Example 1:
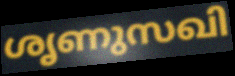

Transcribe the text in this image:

ശൃണുസഖി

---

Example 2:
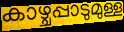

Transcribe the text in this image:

കാഴ്ചപ്പാടുമുള്ള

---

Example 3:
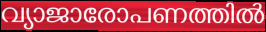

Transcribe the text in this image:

വ്യാജാരോപണത്തിൽ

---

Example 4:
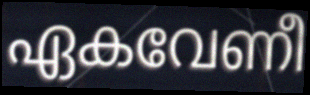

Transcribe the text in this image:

ഏകവേണീ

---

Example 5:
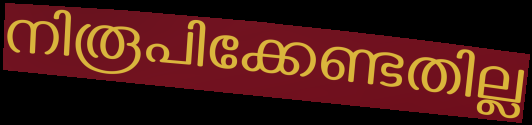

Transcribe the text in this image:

നിരൂപിക്കേണ്ടതില്ല